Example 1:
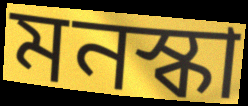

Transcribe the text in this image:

মনস্কা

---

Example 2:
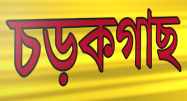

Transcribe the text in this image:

চড়কগাছ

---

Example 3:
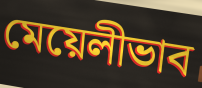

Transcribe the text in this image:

মেয়েলীভাব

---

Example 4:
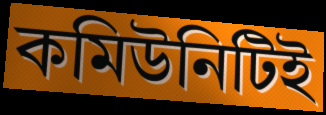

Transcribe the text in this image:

কমিউনিটিই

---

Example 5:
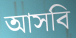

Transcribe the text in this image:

আসবি